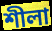
শীলা